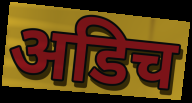
अडिच